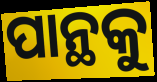
ପାନ୍ଥକୁ